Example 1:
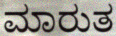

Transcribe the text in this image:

ಮಾರುತ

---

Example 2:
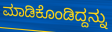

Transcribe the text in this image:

ಮಾಡಿಕೊಂಡಿದ್ದನ್ನು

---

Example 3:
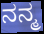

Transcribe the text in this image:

ನನ್ಮ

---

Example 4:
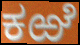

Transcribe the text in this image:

ಕಱೆ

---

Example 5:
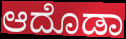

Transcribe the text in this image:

ಆದೊಡಾ